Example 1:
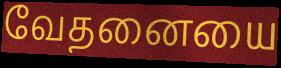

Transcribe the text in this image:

வேதனையை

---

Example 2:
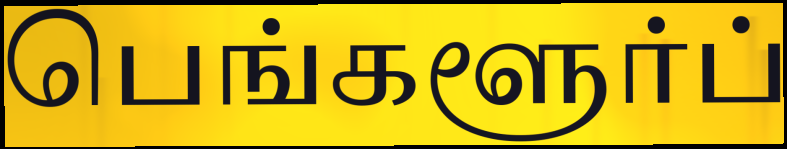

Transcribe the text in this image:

பெங்களூர்ப்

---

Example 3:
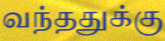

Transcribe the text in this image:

வந்ததுக்கு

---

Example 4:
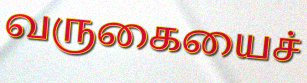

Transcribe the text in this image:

வருகையைச்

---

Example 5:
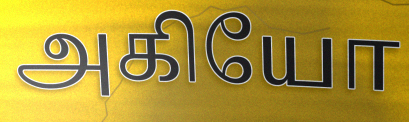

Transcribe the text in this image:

அகியோ